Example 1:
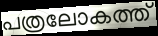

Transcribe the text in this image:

പത്രലോകത്ത്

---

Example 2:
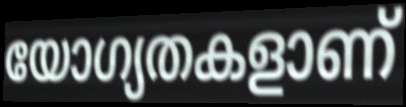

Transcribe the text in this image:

യോഗ്യതകളാണ്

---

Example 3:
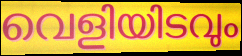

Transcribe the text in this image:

വെളിയിടവും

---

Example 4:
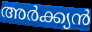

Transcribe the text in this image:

അർക്ക്യൻ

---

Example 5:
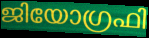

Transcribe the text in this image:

ജിയോഗ്രഫി